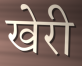
खेरी